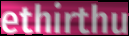
ethirthu